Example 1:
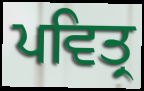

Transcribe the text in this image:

ਪਵਿਤ੍ਰ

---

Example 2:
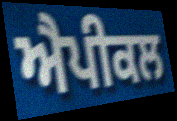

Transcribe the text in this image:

ਐਪੀਕਲ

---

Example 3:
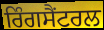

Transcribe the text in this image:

ਰਿੰਗਸੈਂਟਰਲ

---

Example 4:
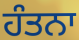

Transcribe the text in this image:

ਹੰਤਨਾ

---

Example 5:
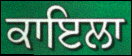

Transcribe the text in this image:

ਕਾਇਲਾ